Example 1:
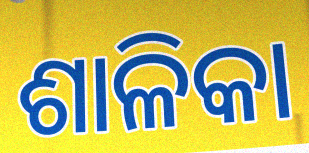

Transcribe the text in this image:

ଶାଳିକା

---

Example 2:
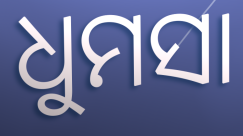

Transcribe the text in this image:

ଧୁମସା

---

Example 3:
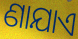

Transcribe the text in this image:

ଣାଯାଏ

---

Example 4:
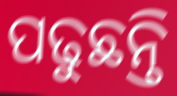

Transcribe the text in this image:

ପଢୁଛନ୍ତି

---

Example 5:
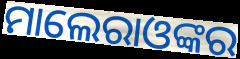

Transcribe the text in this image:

ମାଲେରାଓଙ୍କର